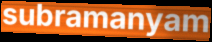
subramanyam